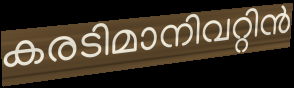
കരടിമാനിവറ്റിൻ